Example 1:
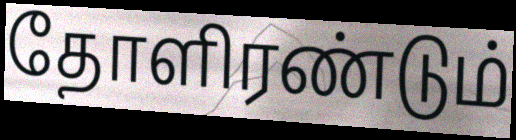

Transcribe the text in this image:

தோளிரண்டும்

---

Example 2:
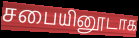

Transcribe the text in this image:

சபையினூடாக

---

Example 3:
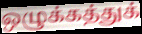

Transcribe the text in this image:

ஒழுக்கத்துக்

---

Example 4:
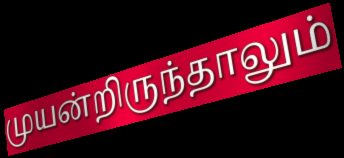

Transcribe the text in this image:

முயன்றிருந்தாலும்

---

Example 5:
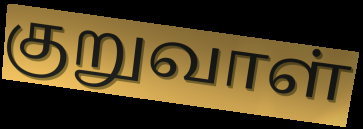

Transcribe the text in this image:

குறுவாள்